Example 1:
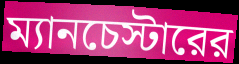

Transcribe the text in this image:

ম্যানচেস্টারের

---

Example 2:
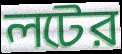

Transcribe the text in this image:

লটের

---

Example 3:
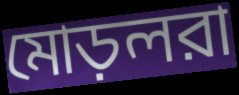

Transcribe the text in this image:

মোড়লরা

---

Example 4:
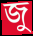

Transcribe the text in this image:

জু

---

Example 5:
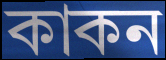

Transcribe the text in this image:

কাকন